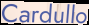
Cardullo